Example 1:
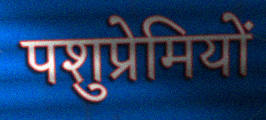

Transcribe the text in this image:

पशुप्रेमियों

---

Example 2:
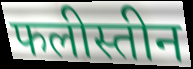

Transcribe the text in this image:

फलीस्तीन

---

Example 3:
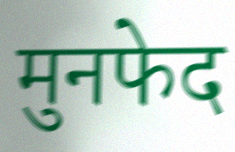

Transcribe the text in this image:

मुनफेद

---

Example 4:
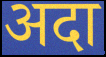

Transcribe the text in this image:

अदा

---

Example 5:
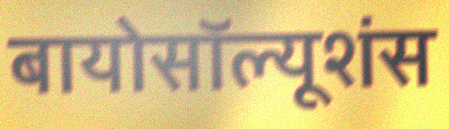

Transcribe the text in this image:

बायोसॉल्यूशंस